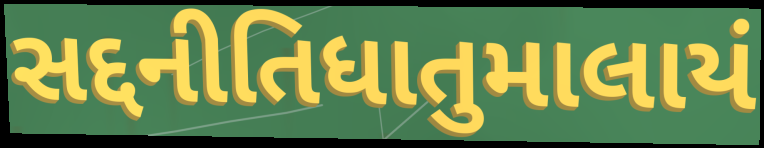
સદ્દનીતિધાતુમાલાયં